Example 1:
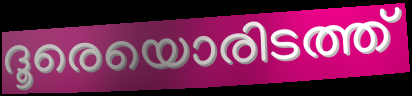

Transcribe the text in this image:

ദൂരെയൊരിടത്ത്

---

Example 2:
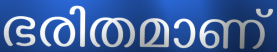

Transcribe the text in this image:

ഭരിതമാണ്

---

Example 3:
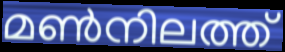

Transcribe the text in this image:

മൺനിലത്ത്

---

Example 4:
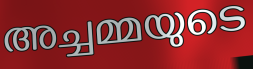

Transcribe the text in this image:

അച്ചമ്മയുടെ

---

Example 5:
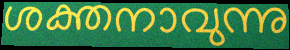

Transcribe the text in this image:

ശക്തനാവുന്നു